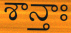
శాన్తాః